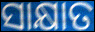
ସାକ୍ଷାତ